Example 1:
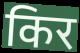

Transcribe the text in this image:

किर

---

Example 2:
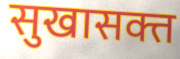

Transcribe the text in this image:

सुखासक्त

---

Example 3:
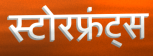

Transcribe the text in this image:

स्टोरफ्रंट्स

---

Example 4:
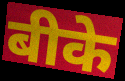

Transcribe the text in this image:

बीके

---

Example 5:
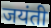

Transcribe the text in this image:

जयंती